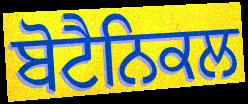
ਬੋਟੈਨਿਕਲ